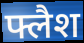
फ्लैश